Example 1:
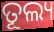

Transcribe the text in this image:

ତୂଲ୍ୟ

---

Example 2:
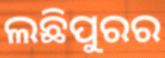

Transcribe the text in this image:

ଲଛିପୁରର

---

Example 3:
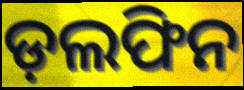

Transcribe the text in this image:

ଡ଼ଲଫିନ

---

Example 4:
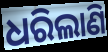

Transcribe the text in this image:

ଧରିଲାଣି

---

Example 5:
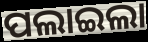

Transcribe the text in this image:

ପଲାଇଲା